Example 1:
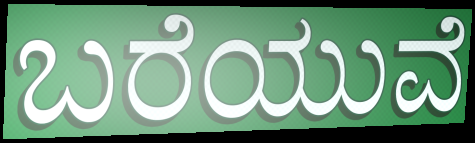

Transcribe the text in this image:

ಬರೆಯುವೆ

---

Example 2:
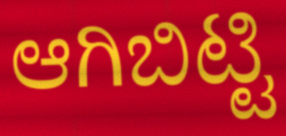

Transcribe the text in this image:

ಆಗಿಬಿಟ್ಟಿ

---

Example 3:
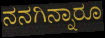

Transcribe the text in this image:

ನನಗಿನ್ನಾರೂ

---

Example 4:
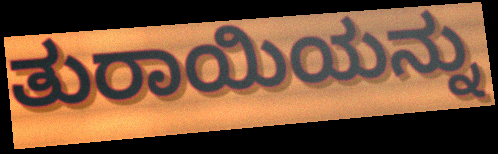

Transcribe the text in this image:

ತುರಾಯಿಯನ್ನು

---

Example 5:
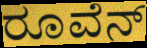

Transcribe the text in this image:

ರೂವೆನ್